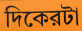
দিকেরটা